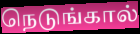
நெடுங்கால்